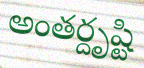
అంతర్దృష్టి